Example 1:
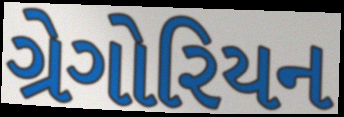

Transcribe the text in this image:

ગ્રેગોરિયન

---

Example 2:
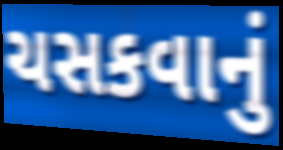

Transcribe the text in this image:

ચસકવાનું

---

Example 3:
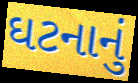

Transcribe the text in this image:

ઘટનાનું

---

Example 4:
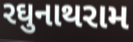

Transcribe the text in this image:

રઘુનાથરામ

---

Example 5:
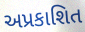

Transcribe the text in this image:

અપ્રકાશિત